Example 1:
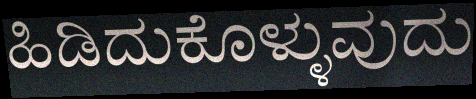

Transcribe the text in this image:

ಹಿಡಿದುಕೊಳ್ಳುವುದು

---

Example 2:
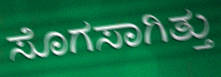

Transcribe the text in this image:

ಸೊಗಸಾಗಿತ್ತು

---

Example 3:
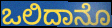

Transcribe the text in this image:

ಒಲಿದಾನೊ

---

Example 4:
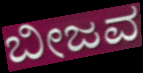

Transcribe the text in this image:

ಬೀಜವ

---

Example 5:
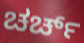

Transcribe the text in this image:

ಚರ್ಚ್